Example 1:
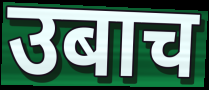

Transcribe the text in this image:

उबाच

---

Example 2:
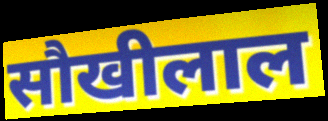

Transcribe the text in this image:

सौखीलाल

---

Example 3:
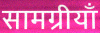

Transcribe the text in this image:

सामग्रीयाँ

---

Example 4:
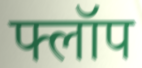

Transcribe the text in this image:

फ्लॉप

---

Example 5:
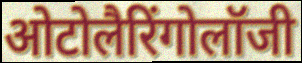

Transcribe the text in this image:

ओटोलैरिंगोलॉजी